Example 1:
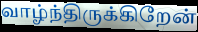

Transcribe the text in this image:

வாழ்ந்திருக்கிறேன்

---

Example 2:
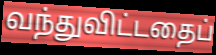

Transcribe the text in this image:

வந்துவிட்டதைப்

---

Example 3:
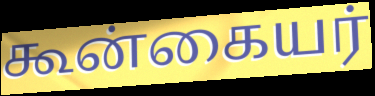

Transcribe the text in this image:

கூன்கையர்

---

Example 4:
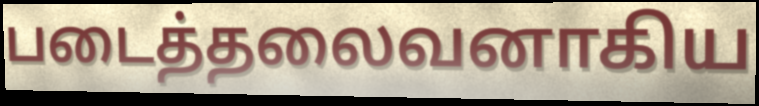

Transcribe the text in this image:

படைத்தலைவனாகிய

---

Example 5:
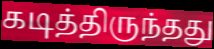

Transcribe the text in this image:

கடித்திருந்தது